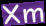
Xm